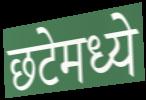
छटेमध्ये